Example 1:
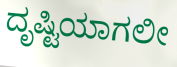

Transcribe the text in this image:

ದೃಷ್ಟಿಯಾಗಲೀ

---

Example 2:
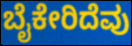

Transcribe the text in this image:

ಬೈಕೇರಿದೆವು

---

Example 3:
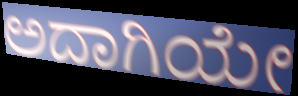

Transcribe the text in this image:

ಅದಾಗಿಯೇ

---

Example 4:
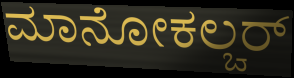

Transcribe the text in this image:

ಮಾನೋಕಲ್ಚರ್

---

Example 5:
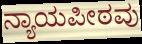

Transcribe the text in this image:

ನ್ಯಾಯಪೀಠವು